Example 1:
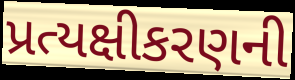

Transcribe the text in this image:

પ્રત્યક્ષીકરણની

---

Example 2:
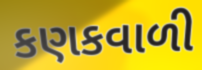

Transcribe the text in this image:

કણકવાળી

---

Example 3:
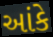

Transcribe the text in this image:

આંકે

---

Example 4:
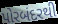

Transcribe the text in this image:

પોરબંદરથી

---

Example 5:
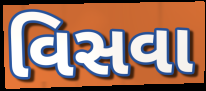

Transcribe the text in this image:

વિસવા